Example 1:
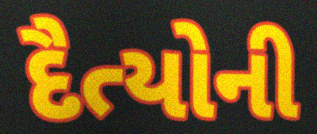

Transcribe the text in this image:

દૈત્યોની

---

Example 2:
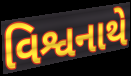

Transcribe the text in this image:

વિશ્વનાથે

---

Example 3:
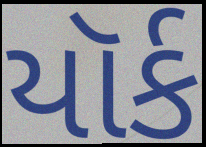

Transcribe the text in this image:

યૉર્ક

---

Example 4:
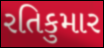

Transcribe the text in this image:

રતિકુમાર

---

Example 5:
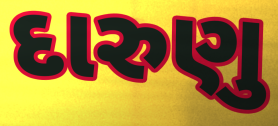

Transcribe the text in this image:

દારુણુ